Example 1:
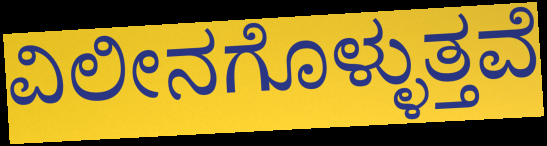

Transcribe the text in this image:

ವಿಲೀನಗೊಳ್ಳುತ್ತವೆ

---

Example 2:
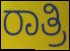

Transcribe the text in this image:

ರಾತ್ರಿ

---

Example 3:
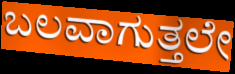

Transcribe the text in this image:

ಬಲವಾಗುತ್ತಲೇ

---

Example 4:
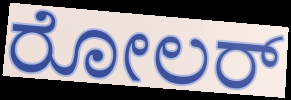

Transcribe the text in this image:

ರೋಲರ್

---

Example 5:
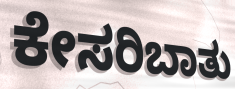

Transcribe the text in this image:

ಕೇಸರಿಬಾತು